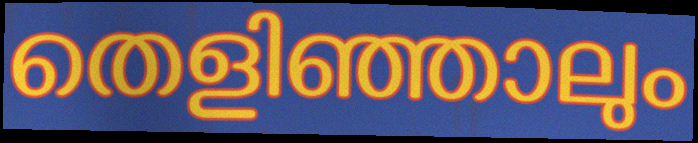
തെളിഞ്ഞാലും